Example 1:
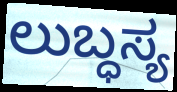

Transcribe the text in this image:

ಲುಬ್ಧಸ್ಯ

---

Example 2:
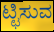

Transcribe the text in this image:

ಟ್ಟಿಸುವ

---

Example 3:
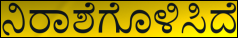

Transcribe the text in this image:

ನಿರಾಶೆಗೊಳಿಸಿದೆ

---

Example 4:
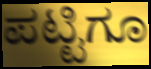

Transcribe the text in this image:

ಪಟ್ಟಿಗೂ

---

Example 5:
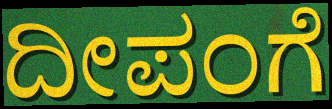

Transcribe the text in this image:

ದೀಪಂಗೆ